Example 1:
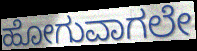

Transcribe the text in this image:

ಹೋಗುವಾಗಲೇ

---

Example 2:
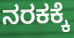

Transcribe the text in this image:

ನರಕಕ್ಕೆ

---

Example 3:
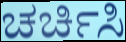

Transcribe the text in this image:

ಚರ್ಚಿಸಿ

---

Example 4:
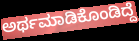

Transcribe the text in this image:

ಅರ್ಥಮಾಡಿಕೊಂಡಿದ್ದೆ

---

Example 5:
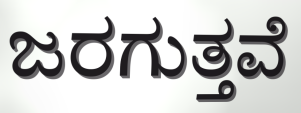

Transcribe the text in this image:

ಜರಗುತ್ತವೆ